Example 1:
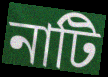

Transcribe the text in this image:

নাটি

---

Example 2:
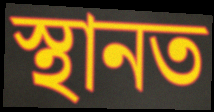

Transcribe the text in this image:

স্থানত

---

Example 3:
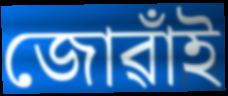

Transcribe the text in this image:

জোৱাঁই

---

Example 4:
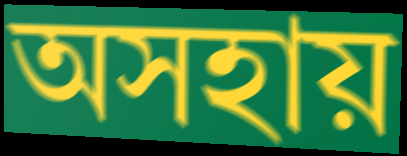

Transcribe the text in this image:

অসহায়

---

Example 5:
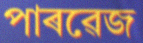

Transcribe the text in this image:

পাৰৱেজ